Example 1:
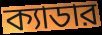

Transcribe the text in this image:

ক্যাডার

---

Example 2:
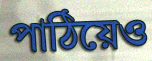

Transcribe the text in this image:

পাঠিয়েও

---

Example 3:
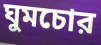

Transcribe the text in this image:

ঘুমচোর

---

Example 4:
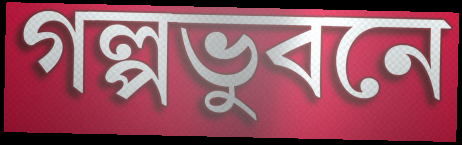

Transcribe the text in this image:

গল্পভুবনে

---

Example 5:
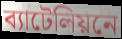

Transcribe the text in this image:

ব্যাটেলিয়নে